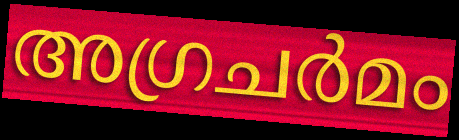
അഗ്രചർമം